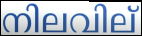
നിലവില്